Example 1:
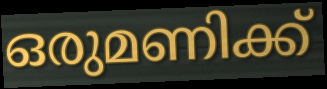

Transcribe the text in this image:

ഒരുമണിക്ക്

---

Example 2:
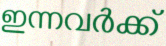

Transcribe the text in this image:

ഇന്നവർക്ക്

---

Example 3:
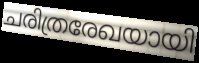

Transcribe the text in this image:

ചരിത്രരേഖയായി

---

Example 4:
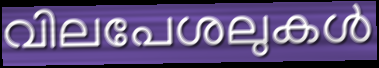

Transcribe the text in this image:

വിലപേശലുകൾ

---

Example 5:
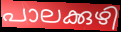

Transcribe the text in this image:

പാലക്കുഴി